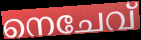
നെചേവ്